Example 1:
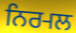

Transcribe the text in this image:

ਨਿਰ੍ਮਲ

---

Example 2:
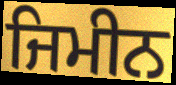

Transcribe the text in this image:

ਜਿਮੀਨ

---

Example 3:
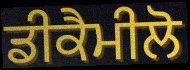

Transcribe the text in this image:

ਡੀਕੈਮੀਲੋ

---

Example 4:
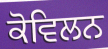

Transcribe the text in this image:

ਕੋਵਿਲਨ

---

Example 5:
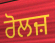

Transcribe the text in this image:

ਰੋਲਜ਼